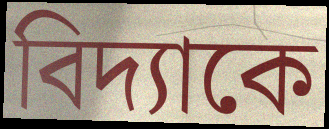
বিদ্যাকে